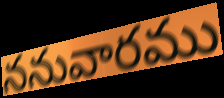
ననువారము